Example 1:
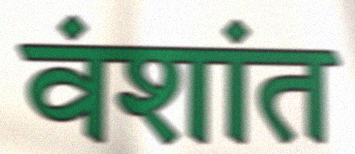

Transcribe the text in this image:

वंशांत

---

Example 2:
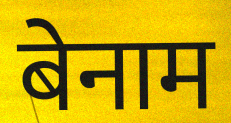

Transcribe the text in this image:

बेनाम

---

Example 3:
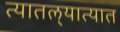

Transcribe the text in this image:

त्यातल्यात्यात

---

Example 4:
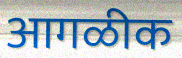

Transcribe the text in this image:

आगळीक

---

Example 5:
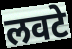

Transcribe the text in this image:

लवटे